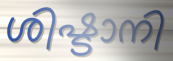
ശിഷ്ടാനി